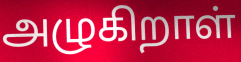
அழுகிறாள்